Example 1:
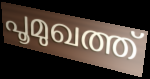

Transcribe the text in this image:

പൂമുഖത്ത്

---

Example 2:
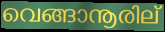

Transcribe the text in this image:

വെങ്ങാനൂരില്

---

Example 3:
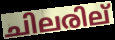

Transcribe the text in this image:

ചിലരില്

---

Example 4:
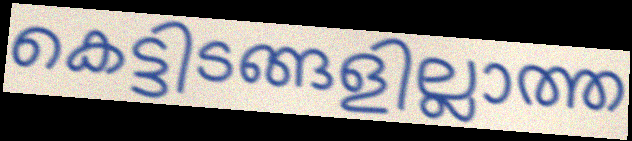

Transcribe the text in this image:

കെട്ടിടങ്ങളില്ലാത്ത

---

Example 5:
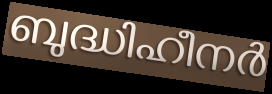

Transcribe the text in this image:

ബുദ്ധിഹീനർ